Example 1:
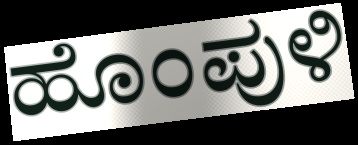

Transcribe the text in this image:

ಹೊಂಪುಳಿ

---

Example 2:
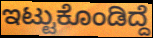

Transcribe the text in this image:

ಇಟ್ಟುಕೊಂಡಿದ್ದೆ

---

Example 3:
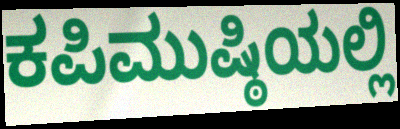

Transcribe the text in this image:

ಕಪಿಮುಷ್ಠಿಯಲ್ಲಿ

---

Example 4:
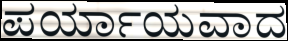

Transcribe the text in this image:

ಪರ್ಯಾಯವಾದ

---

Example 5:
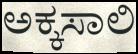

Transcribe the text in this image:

ಅಕ್ಕಸಾಲಿ